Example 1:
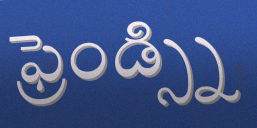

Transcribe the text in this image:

ఫ్రెండ్స్ని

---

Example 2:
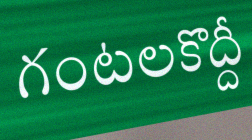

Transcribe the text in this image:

గంటలకొద్దీ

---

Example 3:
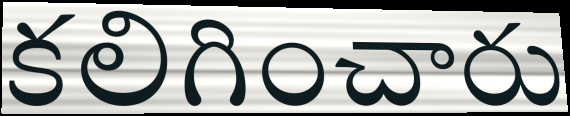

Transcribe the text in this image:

కలిగించారు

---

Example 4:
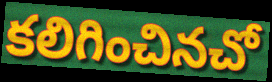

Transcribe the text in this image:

కలిగించినచో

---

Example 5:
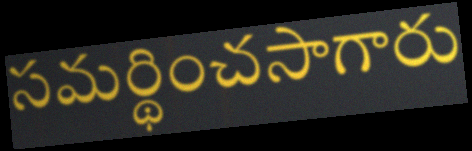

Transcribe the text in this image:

సమర్థించసాగారు